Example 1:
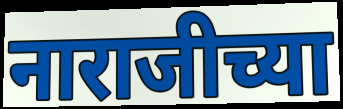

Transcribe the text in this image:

नाराजीच्या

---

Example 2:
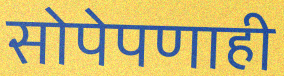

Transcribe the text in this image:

सोपेपणाही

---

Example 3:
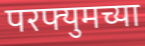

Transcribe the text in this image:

परफ्युमच्या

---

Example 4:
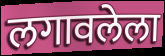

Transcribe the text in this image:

लगावलेला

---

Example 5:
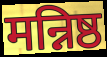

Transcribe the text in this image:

मन्निष्ठ